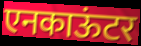
एनकाऊंटर